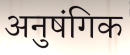
अनुषंगिक